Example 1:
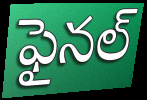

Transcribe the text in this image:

ఫైనల్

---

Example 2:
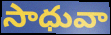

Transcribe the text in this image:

సాధువా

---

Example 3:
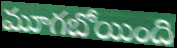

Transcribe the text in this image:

మూగబోయింది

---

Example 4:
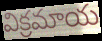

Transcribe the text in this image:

విక్రమాయ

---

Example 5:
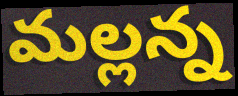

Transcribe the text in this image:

మల్లన్న